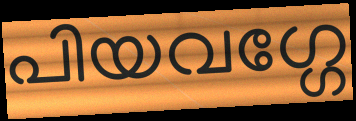
പിയവഗ്ഗേ